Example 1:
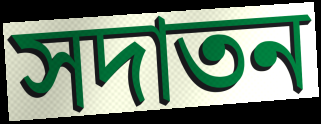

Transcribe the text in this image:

সদাতন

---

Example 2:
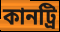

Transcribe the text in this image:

কানট্রি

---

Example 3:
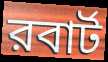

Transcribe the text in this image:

রবার্ট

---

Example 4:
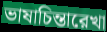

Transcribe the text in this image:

ভাষাচিন্তারেখা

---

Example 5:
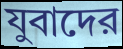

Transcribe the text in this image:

যুবাদের